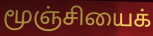
மூஞ்சியைக்